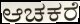
ಆಚಕರೆ